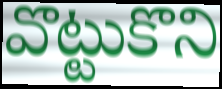
వొట్టుకొని